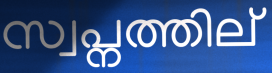
സ്വപ്നത്തില്